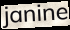
janine